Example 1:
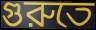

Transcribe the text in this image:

গুরুতে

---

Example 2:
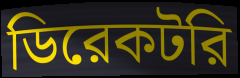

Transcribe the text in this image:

ডিরেকটরি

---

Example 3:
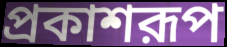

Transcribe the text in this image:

প্রকাশরূপ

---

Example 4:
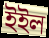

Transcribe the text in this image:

ইইল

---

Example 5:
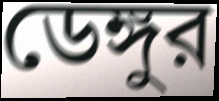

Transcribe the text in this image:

ডেঙ্গুর